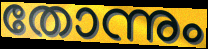
തോന്നും